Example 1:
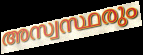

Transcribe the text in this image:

അസ്വസ്ഥരും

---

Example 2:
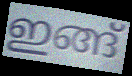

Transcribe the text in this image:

ഇങ്ങ്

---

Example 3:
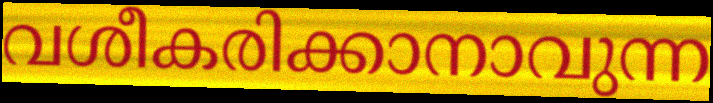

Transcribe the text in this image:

വശീകരിക്കാനാവുന്ന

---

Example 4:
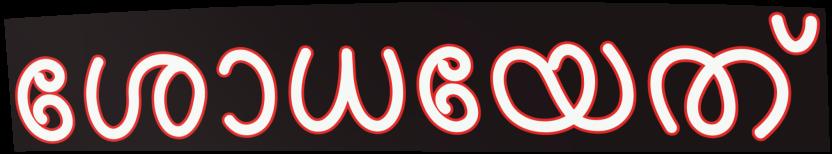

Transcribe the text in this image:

ശോധയേത്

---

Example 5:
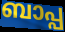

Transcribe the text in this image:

ബാപ്പ